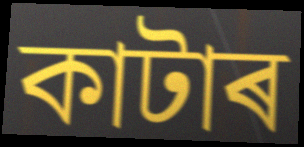
কাটাৰ